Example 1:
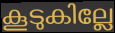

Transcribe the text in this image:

കൂടുകില്ലേ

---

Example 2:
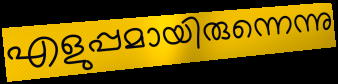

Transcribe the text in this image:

എളുപ്പമായിരുന്നെന്നു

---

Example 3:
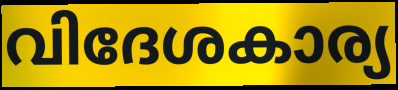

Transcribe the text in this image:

വിദേശകാര്യ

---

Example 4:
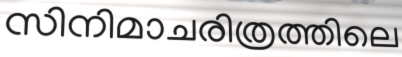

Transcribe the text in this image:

സിനിമാചരിത്രത്തിലെ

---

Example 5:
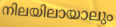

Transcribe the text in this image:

നിലയിലായാലും